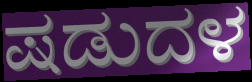
ಷಡುದಳ